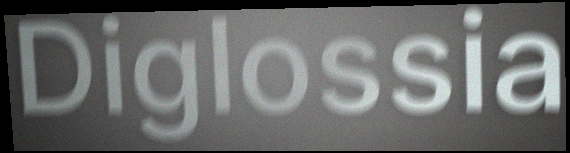
Diglossia